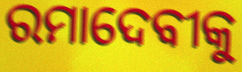
ରମାଦେବୀକୁ